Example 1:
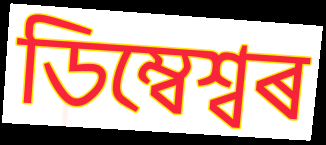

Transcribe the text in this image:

ডিম্বেশ্বৰ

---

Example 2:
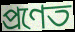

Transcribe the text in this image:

প্ৰণেত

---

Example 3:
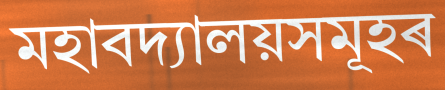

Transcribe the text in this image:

মহাবদ্যালয়সমূহৰ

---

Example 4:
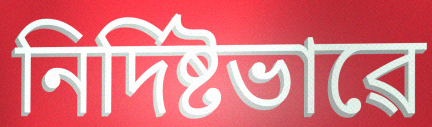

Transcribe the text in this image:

নিৰ্দিষ্টভাৱে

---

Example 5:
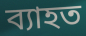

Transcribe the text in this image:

ব্যাহত